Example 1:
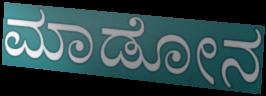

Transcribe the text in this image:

ಮಾಡೋನ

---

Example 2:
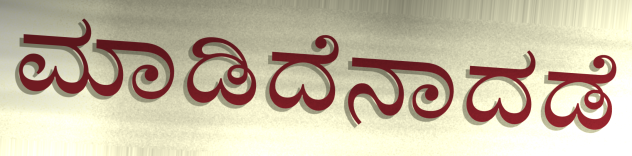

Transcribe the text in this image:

ಮಾಡಿದೆನಾದಡೆ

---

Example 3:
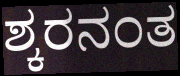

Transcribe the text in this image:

ಶ್ಕರನಂತ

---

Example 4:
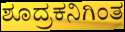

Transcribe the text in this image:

ಶೂದ್ರಕನಿಗಿಂತ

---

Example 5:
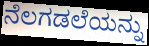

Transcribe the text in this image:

ನೆಲಗಡಲೆಯನ್ನು